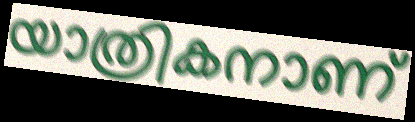
യാത്രികനാണ്